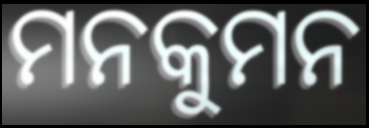
ମନକୁମନ